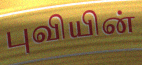
புவியின்